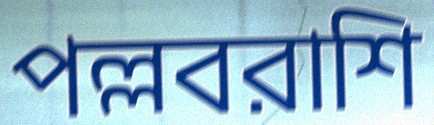
পল্লবরাশি